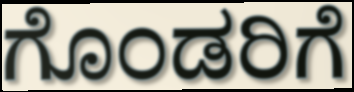
ಗೊಂಡರಿಗೆ